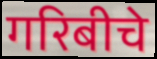
गरिबीचे